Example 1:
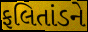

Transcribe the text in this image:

ફલિતાંડને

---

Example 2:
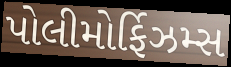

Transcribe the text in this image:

પોલીમોર્ફિઝમ્સ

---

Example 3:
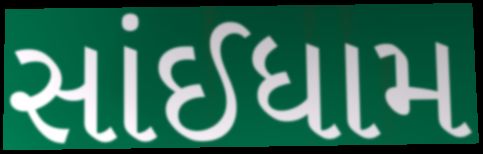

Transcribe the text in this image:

સાંઈધામ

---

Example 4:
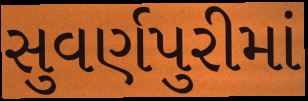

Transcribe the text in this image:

સુવર્ણપુરીમાં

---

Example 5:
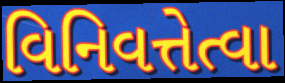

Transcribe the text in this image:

વિનિવત્તેત્વા